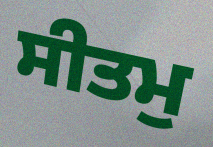
ਸੀਤਮੁ